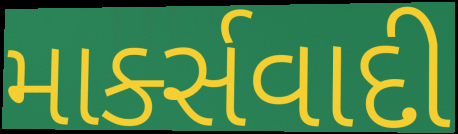
માર્ક્સવાદી